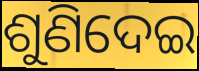
ଶୁଣିଦେଇ